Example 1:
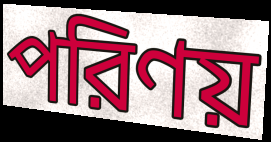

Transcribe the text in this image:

পরিণয়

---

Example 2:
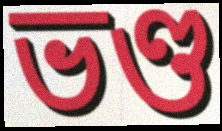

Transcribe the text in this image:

ভণ্ড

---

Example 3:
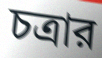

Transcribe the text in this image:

চত্রার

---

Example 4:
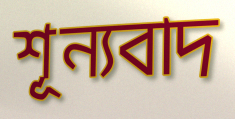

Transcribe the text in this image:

শূন্যবাদ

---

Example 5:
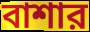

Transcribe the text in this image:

বাশার